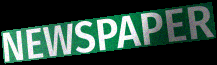
NEWSPAPER